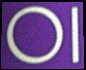
ଠା